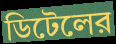
ডিটেলের